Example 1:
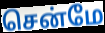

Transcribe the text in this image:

சென்மே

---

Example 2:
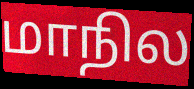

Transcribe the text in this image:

மாநில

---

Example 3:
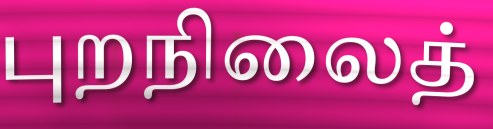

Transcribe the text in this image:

புறநிலைத்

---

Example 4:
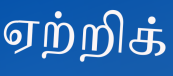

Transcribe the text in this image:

ஏற்றிக்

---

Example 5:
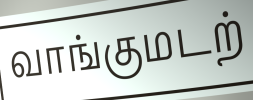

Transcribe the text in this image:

வாங்குமடற்